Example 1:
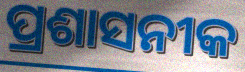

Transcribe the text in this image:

ପ୍ରଶାସନୀକ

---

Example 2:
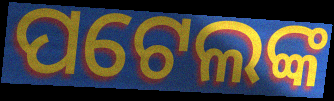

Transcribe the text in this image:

ପଟେଲଙ୍କ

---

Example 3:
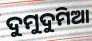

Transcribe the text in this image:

ଦୁମୁଦୁମିଆ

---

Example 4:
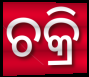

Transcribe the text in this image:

ଚକ୍ରି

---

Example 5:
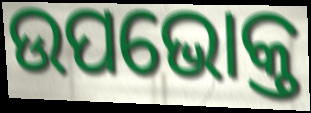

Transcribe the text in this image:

ଉପଭୋକ୍ତ